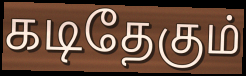
கடிதேகும்